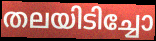
തലയിടിച്ചോ